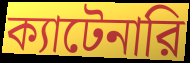
ক্যাটেনারি